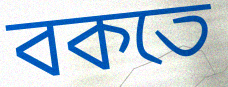
বকতে